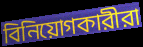
বিনিয়োগকারীরা